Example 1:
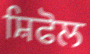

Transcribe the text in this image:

ਸ਼ਿਫੋਲ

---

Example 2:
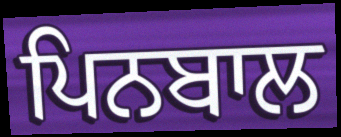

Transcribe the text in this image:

ਪਿਨਬਾਲ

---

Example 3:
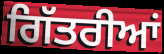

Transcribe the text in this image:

ਗਿੱਤਰੀਆਂ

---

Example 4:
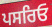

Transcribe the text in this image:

ਪਸਰਿਓ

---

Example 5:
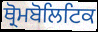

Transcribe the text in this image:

ਥ੍ਰੋਮਬੋਲਿਟਿਕ